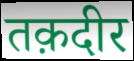
तक़दीर